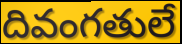
దివంగతులే